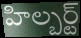
హిల్బర్ట్